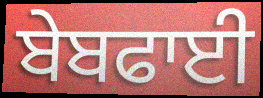
ਬੇਬਫਾਈ